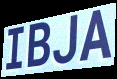
IBJA